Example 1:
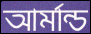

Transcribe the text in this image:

আর্মান্ড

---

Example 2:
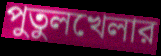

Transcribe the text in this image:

পুতুলখেলার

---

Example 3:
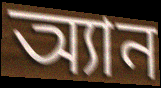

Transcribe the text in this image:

অ্যান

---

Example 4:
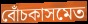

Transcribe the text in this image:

বোঁচকাসমেত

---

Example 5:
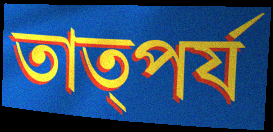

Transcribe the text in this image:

তাত্পর্য